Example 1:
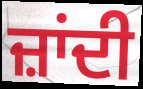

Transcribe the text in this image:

ਜ਼ਾਂਦੀ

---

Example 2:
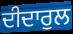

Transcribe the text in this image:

ਦੀਦਾਰੁਲ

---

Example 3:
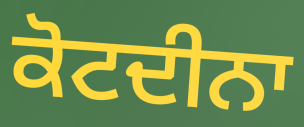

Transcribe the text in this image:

ਕੋਟਦੀਨਾ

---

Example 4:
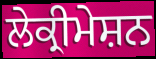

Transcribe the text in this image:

ਲੇਕ੍ਰੀਮੇਸ਼ਨ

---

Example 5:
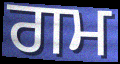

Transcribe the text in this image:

ਗਮ